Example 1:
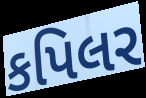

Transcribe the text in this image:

કપિલર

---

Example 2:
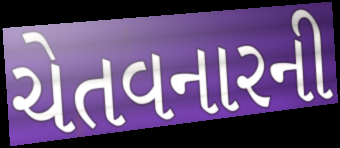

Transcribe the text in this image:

ચેતવનારની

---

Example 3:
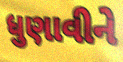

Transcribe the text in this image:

ધુણાવીને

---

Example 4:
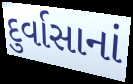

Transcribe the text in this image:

દુર્વાસાનાં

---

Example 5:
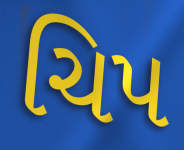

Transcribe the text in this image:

ચિપ